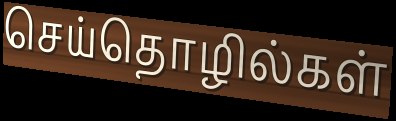
செய்தொழில்கள்